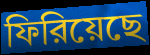
ফিরিয়েছে